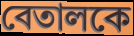
বেতালকে